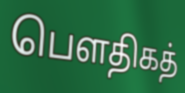
பௌதிகத்